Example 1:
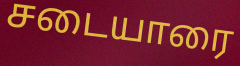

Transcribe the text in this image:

சடையாரை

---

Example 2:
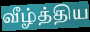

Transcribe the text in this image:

வீழ்த்திய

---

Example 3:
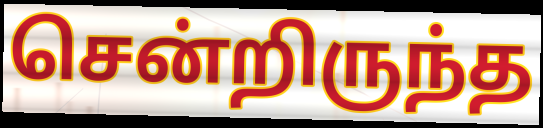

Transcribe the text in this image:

சென்றிருந்த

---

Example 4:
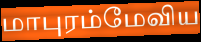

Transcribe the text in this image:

மாபுரம்மேவிய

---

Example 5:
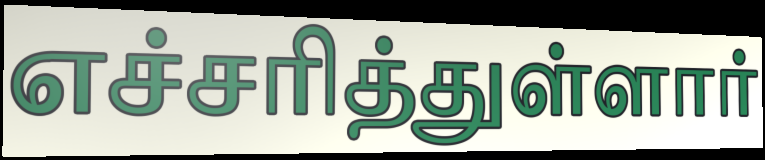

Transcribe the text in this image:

எச்சரித்துள்ளார்